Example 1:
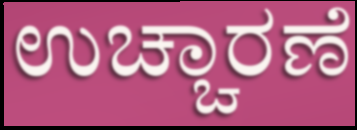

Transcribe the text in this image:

ಉಚ್ಚಾರಣೆ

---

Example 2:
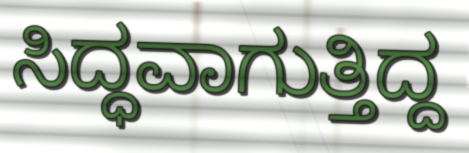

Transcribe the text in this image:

ಸಿದ್ಧವಾಗುತ್ತಿದ್ದ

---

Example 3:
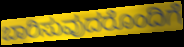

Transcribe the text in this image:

ಬಾರಿಸುವುದರೊಂದಿಗೆ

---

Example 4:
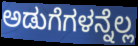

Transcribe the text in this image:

ಅಡುಗೆಗಳನ್ನೆಲ್ಲ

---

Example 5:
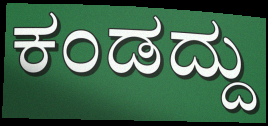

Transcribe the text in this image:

ಕಂಡದ್ದು